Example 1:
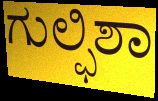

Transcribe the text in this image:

ಗುಲ್ಫಿಶಾ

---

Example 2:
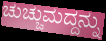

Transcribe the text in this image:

ಚುಚ್ಚುಮದ್ದನ್ನು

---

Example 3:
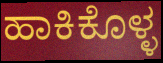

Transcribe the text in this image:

ಹಾಕಿಕೊಳ್ಳ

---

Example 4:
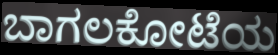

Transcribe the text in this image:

ಬಾಗಲಕೋಟೆಯ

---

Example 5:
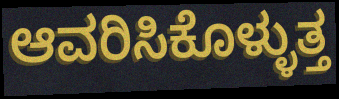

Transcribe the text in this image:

ಆವರಿಸಿಕೊಳ್ಳುತ್ತ